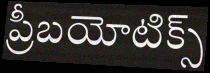
ప్రీబయోటిక్స్